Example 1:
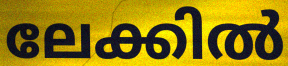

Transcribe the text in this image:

ലേക്കിൽ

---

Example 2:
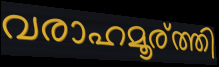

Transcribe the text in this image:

വരാഹമൂര്ത്തി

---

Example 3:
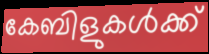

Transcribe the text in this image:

കേബിളുകൾക്ക്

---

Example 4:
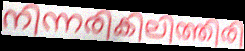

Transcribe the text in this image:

നിന്നരികിലിത്തിരി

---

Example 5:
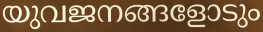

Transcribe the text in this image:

യുവജനങ്ങളോടും